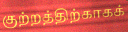
குற்றத்திற்காகக்